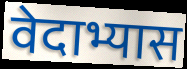
वेदाभ्यास